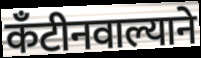
कँटीनवाल्याने